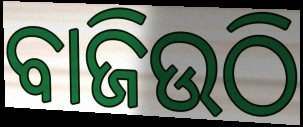
ବାଜିଉଠି